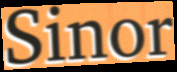
Sinor